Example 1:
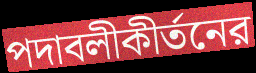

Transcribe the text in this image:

পদাবলীকীর্তনের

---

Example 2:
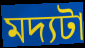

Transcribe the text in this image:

মদ্যটা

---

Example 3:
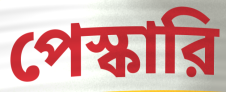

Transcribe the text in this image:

পেস্কারি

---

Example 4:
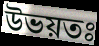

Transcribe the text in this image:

উভয়তঃ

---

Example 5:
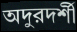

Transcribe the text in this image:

অদুরদর্শী